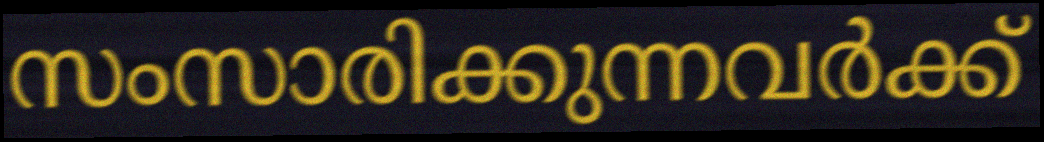
സംസാരിക്കുന്നവർക്ക്